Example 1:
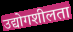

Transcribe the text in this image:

उद्योगशीलता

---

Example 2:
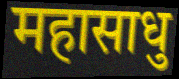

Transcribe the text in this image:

महासाधु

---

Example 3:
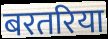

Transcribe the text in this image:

बरतरिया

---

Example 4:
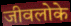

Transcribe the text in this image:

जीवलोके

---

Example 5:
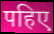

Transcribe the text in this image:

पहिए